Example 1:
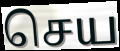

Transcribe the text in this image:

செய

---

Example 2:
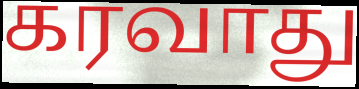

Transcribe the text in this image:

கரவாது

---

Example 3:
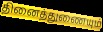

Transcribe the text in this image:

தினைத்துணையும்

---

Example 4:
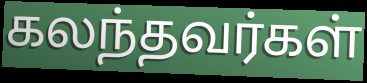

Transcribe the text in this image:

கலந்தவர்கள்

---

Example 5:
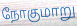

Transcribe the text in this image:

நோகுமாறு